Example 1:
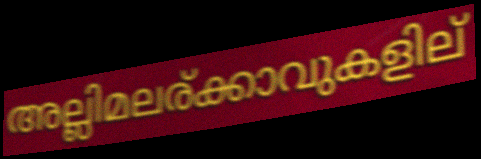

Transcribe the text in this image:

അല്ലിമലര്ക്കാവുകളില്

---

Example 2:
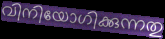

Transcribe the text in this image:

വിനിയോഗിക്കുന്നതു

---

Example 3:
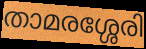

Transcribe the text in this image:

താമരശ്ശേരി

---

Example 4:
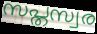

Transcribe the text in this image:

സപ്തസ്വര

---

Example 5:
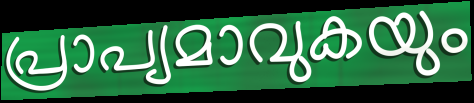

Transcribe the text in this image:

പ്രാപ്യമാവുകയും